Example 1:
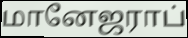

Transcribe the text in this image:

மானேஜராப்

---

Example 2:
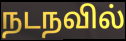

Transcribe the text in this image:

நடநவில்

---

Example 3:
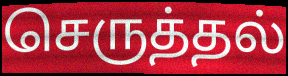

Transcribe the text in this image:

செருத்தல்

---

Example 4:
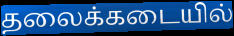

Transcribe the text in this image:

தலைக்கடையில்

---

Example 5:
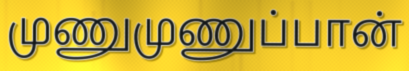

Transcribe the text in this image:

முணுமுணுப்பான்